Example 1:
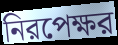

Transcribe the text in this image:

নিরপেক্ষর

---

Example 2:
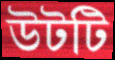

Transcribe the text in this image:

উটটি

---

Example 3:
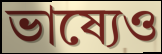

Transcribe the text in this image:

ভাষ্যেও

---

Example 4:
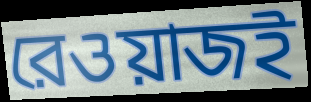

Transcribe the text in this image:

রেওয়াজই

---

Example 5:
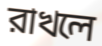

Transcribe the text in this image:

রাখলে